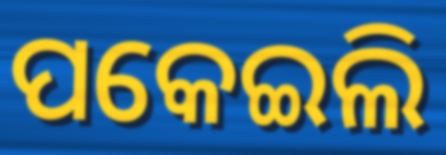
ପକେଇଲି